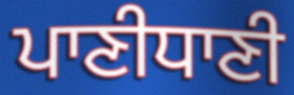
ਪਾਣੀਧਾਣੀ